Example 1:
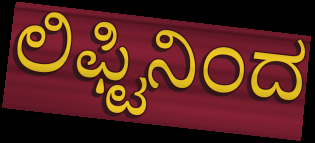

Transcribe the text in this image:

ಲಿಫ್ಟಿನಿಂದ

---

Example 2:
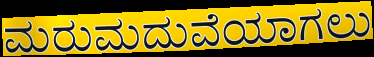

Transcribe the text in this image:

ಮರುಮದುವೆಯಾಗಲು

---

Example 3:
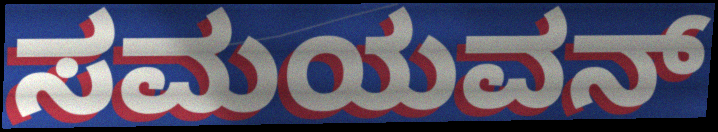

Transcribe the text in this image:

ಸಮಯವನ್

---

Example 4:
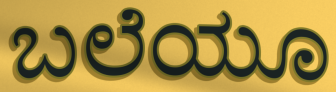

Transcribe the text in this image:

ಬಲೆಯೂ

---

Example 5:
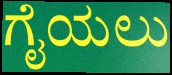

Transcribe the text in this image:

ಗೈಯಲು